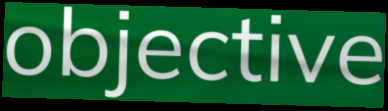
objective